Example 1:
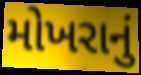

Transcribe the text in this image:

મોખરાનું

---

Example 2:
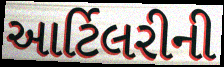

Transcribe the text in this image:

આર્ટિલરીની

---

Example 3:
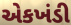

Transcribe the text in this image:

એકખંડી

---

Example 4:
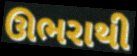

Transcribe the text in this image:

ઊભરાથી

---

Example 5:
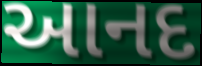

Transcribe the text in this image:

આનદ